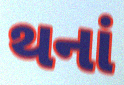
થનાં